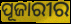
ପୂଜାରୀର